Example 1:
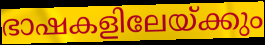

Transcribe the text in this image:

ഭാഷകളിലേയ്ക്കും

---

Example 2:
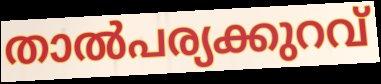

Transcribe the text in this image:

താൽപര്യക്കുറവ്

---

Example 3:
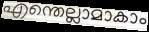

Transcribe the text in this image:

എന്തെല്ലാമാകാം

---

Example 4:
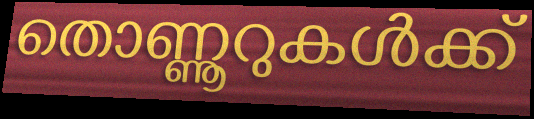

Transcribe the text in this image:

തൊണ്ണൂറുകൾക്ക്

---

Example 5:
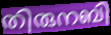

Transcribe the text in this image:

തിരുനബി